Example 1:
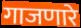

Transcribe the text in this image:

गाजणारे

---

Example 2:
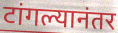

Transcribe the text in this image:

टांगल्यानंतर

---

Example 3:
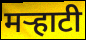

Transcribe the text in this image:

मर्‍हाटी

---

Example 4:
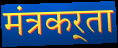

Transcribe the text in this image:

मंत्रकर्ता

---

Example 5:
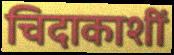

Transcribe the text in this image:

चिदाकाशीं